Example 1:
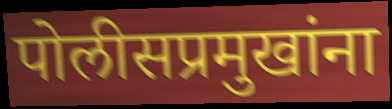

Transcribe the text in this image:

पोलीसप्रमुखांना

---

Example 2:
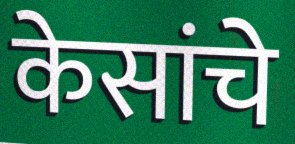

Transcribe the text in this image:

केसांचे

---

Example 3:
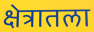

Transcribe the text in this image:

क्षेत्रातला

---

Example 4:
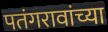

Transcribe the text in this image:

पतंगरावांच्या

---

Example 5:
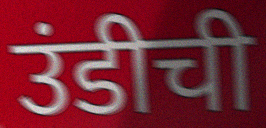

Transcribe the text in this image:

उंडीची